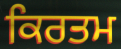
ਕਿਰਤਮ